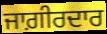
ਜਾਗ਼ੀਰਦਾਰ